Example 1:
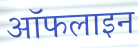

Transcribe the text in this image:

ऑफलाइन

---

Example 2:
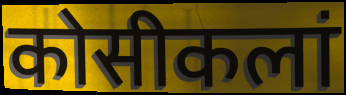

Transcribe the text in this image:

कोसीकलां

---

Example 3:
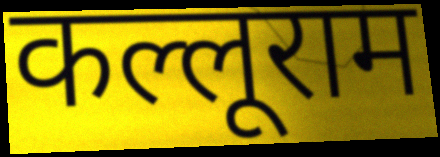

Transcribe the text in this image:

कल्लूराम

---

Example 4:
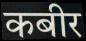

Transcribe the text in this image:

कबीर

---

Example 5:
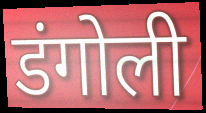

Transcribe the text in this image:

डंगोली